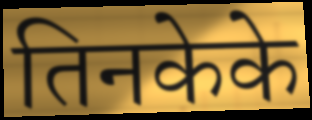
तिनकेके